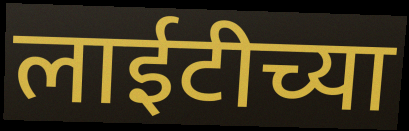
लाईटीच्या